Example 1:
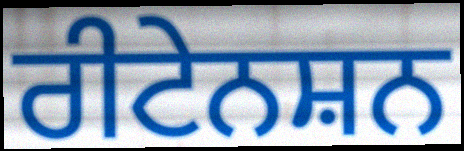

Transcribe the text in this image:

ਰੀਟੇਨਸ਼ਨ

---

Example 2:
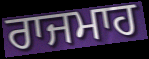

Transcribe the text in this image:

ਰਾਜਮਾਹ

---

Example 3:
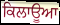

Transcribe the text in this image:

ਕਿਲਾਊਆ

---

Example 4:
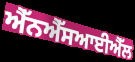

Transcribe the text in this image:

ਐੱਨਐੱਸਆਈਐੱਲ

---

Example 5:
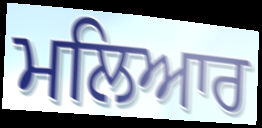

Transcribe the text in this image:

ਮਲਿਆਰ